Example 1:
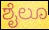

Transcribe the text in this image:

ಶೈಲೂ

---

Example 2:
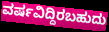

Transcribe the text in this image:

ವರ್ಷವಿದ್ದಿರಬಹುದು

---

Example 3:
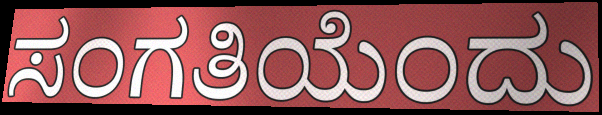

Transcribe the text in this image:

ಸಂಗತಿಯೆಂದು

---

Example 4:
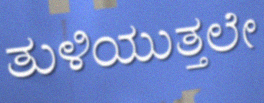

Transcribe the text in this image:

ತುಳಿಯುತ್ತಲೇ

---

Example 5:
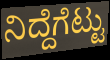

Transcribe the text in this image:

ನಿದ್ದೆಗೆಟ್ಟು